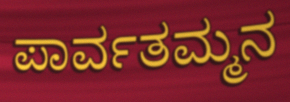
ಪಾರ್ವತಮ್ಮನ